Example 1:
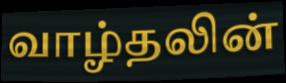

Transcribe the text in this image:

வாழ்தலின்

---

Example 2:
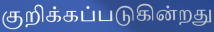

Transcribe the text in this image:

குறிக்கப்படுகின்றது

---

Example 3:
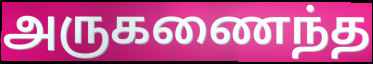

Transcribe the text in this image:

அருகணைந்த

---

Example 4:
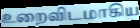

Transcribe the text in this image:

உறைவிடமாகிய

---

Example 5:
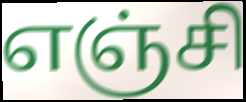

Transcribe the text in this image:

எஞ்சி